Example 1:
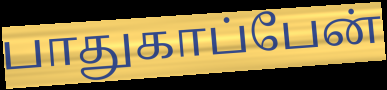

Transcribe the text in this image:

பாதுகாப்பேன்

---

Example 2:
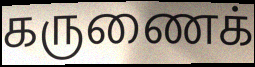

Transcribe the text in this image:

கருணைக்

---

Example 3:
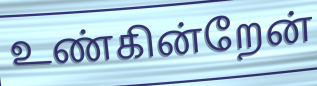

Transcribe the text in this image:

உண்கின்றேன்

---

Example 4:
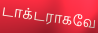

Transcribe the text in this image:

டாக்டராகவே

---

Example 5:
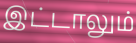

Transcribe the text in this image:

இட்டாலும்